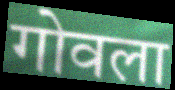
गोवला